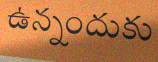
ఉన్నందుకు